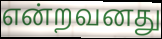
என்றவனது